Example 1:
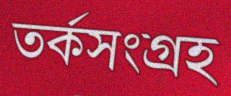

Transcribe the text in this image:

তর্কসংগ্রহ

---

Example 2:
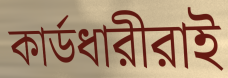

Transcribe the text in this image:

কার্ডধারীরাই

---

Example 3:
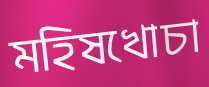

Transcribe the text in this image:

মহিষখোচা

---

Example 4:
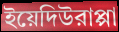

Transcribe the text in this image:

ইয়েদিউরাপ্পা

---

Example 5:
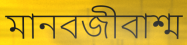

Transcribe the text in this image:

মানবজীবাশ্ম